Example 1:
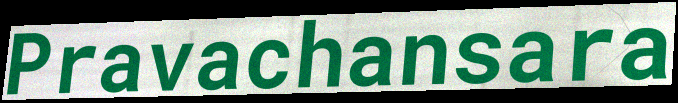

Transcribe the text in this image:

Pravachansara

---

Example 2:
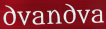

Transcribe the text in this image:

dvandva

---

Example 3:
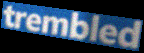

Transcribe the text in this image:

trembled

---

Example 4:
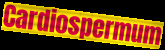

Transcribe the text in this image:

Cardiospermum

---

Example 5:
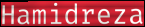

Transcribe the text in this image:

Hamidreza